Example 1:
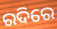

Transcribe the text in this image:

ରଦିରେ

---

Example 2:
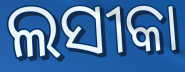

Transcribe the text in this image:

ଲସୀକା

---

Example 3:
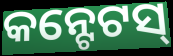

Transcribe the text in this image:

କନ୍ଟେଟସ୍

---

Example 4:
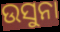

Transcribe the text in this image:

ଉସୁନା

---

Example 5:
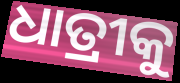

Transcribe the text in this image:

ଧାତ୍ରୀକୁ